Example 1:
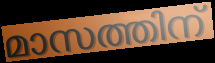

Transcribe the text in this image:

മാസത്തിന്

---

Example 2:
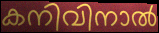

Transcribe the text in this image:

കനിവിനാൽ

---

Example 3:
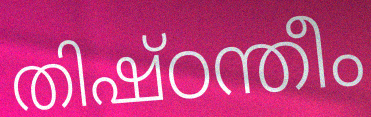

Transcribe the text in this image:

തിഷ്ഠന്തീം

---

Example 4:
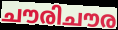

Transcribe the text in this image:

ചൗരിചൗര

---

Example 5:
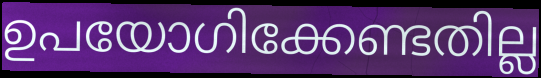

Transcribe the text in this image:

ഉപയോഗിക്കേണ്ടതില്ല